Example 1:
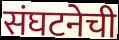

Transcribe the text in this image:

संघटनेची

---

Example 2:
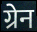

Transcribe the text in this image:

ग्रेन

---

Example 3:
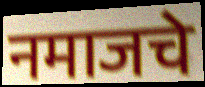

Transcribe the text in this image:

नमाजचे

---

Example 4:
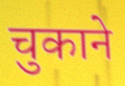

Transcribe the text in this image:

चुकाने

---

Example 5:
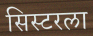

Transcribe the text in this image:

सिस्टरला